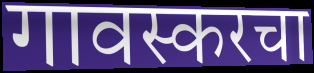
गावस्करचा